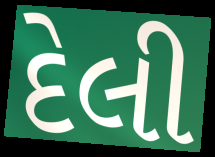
દેલી